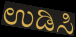
ಉಡಿಸಿ